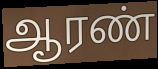
ஆரண்